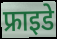
फ्राइडे